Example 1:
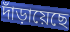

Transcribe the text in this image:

দাঁড়ায়েছে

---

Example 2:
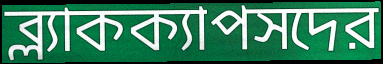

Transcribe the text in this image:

ব্ল্যাকক্যাপসদের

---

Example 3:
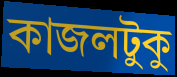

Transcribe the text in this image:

কাজলটুকু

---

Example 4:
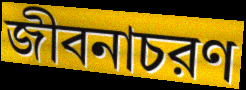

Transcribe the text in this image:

জীবনাচরণ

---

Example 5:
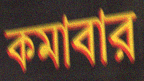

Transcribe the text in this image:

কমাবার